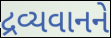
દ્રવ્યવાનને